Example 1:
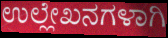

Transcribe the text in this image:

ಉಲ್ಲೇಖನಗಳಾಗಿ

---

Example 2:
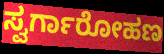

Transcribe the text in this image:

ಸ್ವರ್ಗಾರೋಹಣ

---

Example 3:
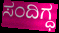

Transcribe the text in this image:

ಸಂದಿಗ್ಧ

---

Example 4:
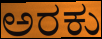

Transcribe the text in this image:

ಅರಕು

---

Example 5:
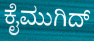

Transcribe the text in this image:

ಕೈಮುಗಿದ್